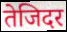
तेजिदर